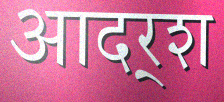
आदर्श